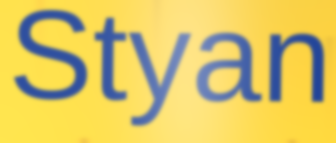
Styan